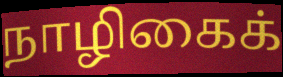
நாழிகைக்